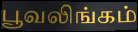
பூவலிங்கம்